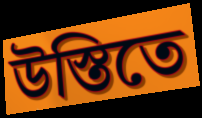
উস্তিতে